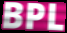
BPL